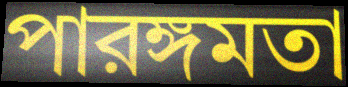
পারঙ্গমতা